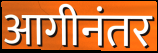
आगीनंतर